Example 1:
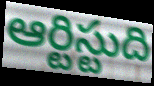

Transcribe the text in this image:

ఆర్టిస్టుది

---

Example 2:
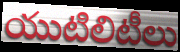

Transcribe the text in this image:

యుటిలిటీలు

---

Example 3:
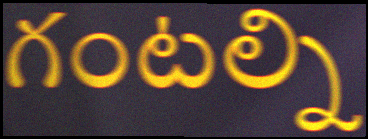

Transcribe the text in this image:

గంటల్ని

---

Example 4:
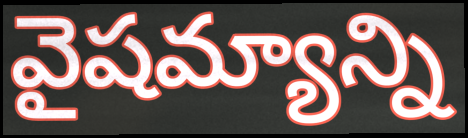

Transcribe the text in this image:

వైషమ్యాన్ని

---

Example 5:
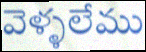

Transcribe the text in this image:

వెళ్ళలేము